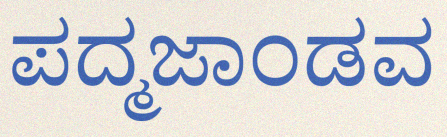
ಪದ್ಮಜಾಂಡವ